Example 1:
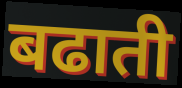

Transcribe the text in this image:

बढाती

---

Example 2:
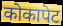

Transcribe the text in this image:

कोकापेट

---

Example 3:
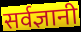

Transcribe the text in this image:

सर्वज्ञानी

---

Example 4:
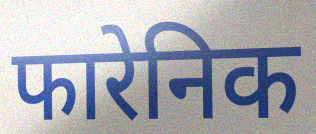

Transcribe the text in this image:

फारेनिक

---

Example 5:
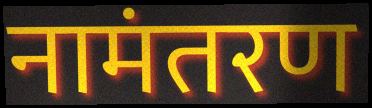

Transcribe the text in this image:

नामंतरण